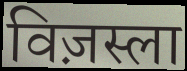
विज़स्ला